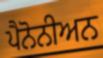
ਪੈਨੋਨੀਅਨ